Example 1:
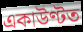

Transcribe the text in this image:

একাউণ্টত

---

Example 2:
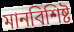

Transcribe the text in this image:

মানবিশিষ্ট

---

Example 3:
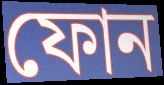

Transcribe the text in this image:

ফোন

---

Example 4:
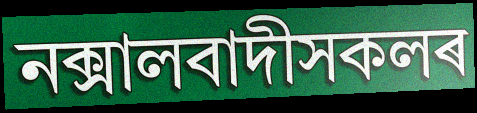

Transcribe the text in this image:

নক্সালবাদীসকলৰ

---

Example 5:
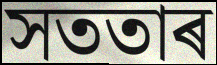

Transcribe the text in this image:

সততাৰ